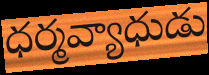
ధర్మవ్యాధుడు